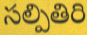
సల్పితిరి